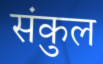
संकुल